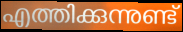
എത്തിക്കുന്നുണ്ട്